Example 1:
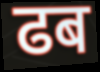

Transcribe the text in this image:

ढब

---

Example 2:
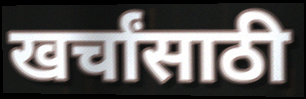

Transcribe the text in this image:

खर्चांसाठी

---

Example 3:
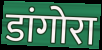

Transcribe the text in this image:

डांगोरा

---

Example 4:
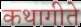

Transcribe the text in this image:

कथागीते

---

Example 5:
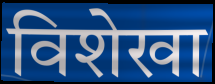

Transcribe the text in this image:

विशेखा